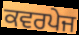
ਕਵਰਪੇਜ